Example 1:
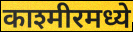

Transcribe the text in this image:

काश्मीरमध्ये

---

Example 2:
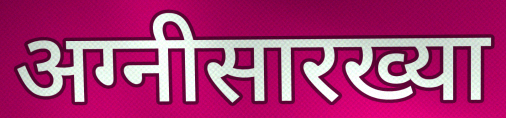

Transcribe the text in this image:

अग्नीसारख्या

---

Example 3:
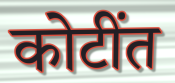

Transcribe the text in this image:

कोटींत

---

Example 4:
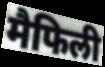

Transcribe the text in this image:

मैफिली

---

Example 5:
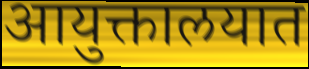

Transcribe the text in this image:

आयुक्तालयात